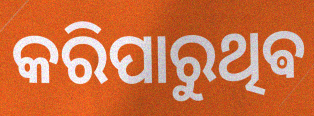
କରିପାରୁଥିଵ